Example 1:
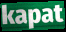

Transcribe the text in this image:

kapat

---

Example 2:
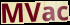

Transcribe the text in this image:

MVac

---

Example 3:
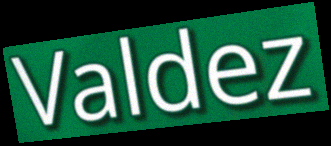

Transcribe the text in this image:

Valdez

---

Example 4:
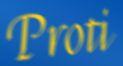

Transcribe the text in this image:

Proti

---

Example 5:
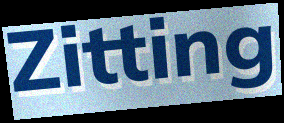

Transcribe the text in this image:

Zitting